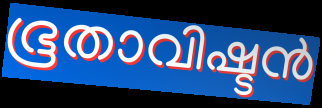
ഭൂതാവിഷ്ടൻ